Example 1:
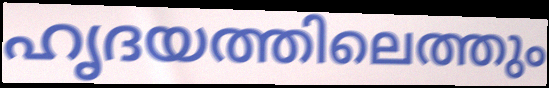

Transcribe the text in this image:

ഹൃദയത്തിലെത്തും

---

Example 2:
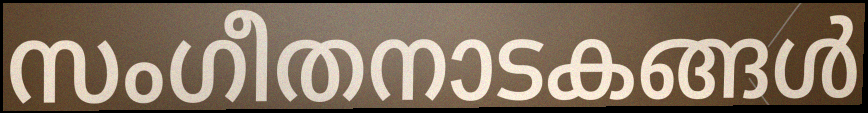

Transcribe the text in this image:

സംഗീതനാടകങ്ങൾ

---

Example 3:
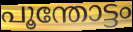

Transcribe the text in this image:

പൂന്തോട്ടം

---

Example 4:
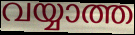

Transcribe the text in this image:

വയ്യാത്ത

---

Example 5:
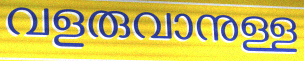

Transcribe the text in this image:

വളരുവാനുള്ള